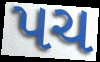
પચ